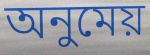
অনুমেয়